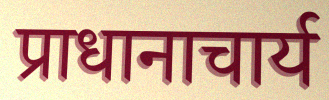
प्राधानाचार्य